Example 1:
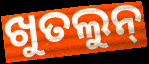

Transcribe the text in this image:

ଖୁତଲୁନ୍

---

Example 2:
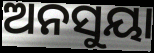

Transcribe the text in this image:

ଅନସୁୟା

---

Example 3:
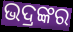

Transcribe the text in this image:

ଭଦ୍ରଙ୍କର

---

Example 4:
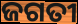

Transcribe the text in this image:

ଜଗତୀ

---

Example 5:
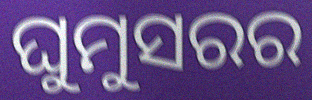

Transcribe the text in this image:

ଘୁମୁସରର